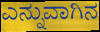
ಎನ್ನುವಾಗಿನ